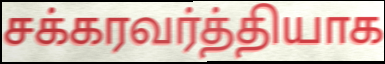
சக்கரவர்த்தியாக